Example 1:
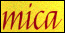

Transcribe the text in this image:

mica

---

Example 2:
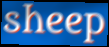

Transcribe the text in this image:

sheep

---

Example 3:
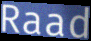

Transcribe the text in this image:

Raad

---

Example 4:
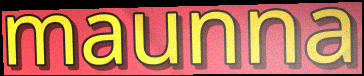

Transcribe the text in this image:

maunna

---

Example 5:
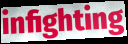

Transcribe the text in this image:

infighting